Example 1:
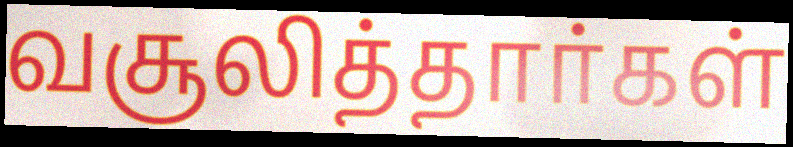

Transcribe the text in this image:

வசூலித்தார்கள்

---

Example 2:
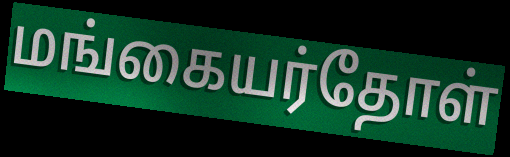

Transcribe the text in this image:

மங்கையர்தோள்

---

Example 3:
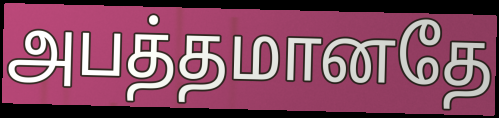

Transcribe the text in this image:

அபத்தமானதே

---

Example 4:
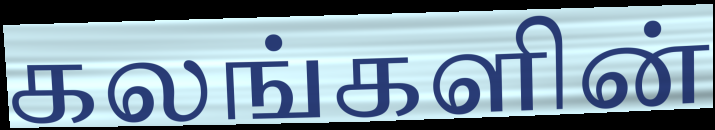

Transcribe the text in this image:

கலங்களின்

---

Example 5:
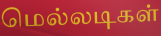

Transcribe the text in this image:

மெல்லடிகள்